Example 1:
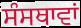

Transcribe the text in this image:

ਸੰਸਥਾਵਾਂ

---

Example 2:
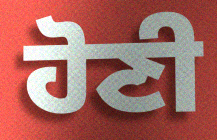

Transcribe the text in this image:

ਹੋਣੀ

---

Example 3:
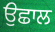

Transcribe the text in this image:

ਉਛਾਲ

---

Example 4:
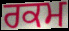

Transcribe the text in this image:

ਰਕਮ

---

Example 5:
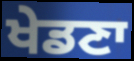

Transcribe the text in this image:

ਖੇਡਣਾ